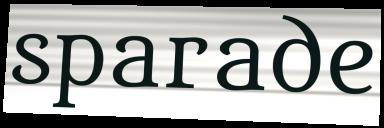
sparade